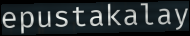
epustakalay